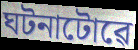
ঘটনাটোৱে